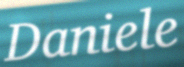
Daniele